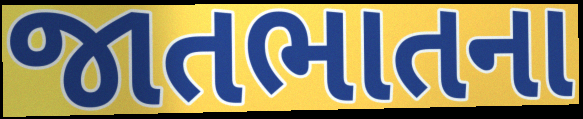
જાતભાતના